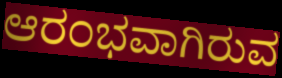
ಆರಂಭವಾಗಿರುವ